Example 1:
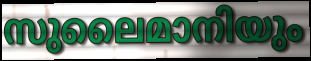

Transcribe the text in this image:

സുലൈമാനിയും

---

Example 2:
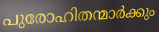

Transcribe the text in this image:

പുരോഹിതന്മാർക്കും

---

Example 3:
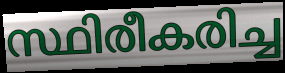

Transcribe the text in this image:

സ്ഥിരീകരിച്ച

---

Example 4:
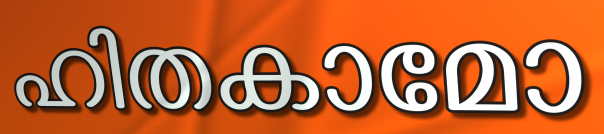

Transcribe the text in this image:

ഹിതകാമോ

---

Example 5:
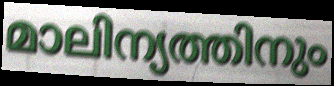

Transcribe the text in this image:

മാലിന്യത്തിനും